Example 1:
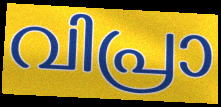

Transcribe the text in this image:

വിപ്രാ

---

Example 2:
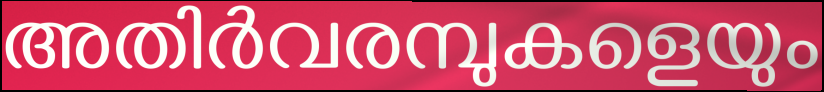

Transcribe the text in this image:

അതിർവരമ്പുകളെയും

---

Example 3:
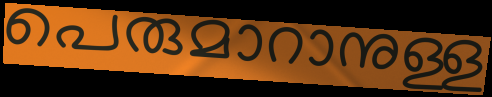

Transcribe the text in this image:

പെരുമാറാനുള്ള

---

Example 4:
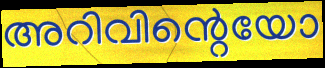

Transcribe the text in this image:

അറിവിന്റെയോ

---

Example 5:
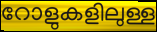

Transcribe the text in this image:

റോളുകളിലുള്ള